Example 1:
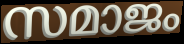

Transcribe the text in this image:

സമാജം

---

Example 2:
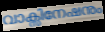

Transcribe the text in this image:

വാക്സിനേഷനും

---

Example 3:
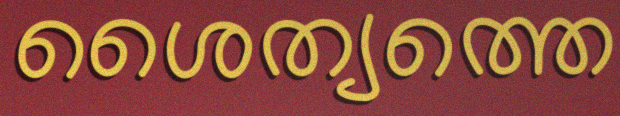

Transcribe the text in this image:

ശൈത്യത്തെ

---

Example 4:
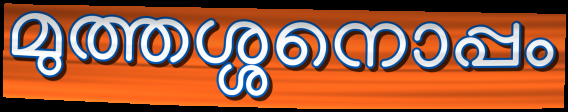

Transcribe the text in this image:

മുത്തശ്ശനൊപ്പം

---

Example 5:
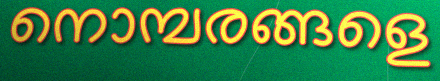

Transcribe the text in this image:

നൊമ്പരങ്ങളെ